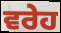
ਵਰੇਹ